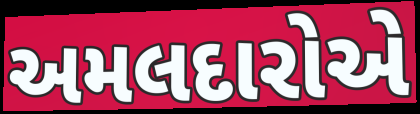
અમલદારોએ